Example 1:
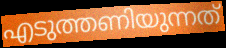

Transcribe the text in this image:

എടുത്തണിയുന്നത്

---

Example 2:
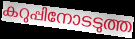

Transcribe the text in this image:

കറുപ്പിനോടടുത്ത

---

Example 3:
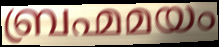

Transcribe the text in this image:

ബ്രഹ്മമയം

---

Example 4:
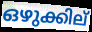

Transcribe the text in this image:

ഒഴുക്കില്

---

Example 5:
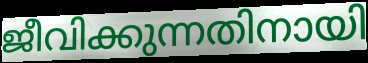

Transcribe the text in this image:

ജീവിക്കുന്നതിനായി